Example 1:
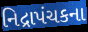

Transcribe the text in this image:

નિદ્રાપંચકના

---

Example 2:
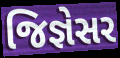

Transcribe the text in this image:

જિજ્ઞેસર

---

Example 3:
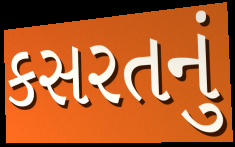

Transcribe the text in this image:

કસરતનું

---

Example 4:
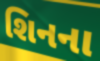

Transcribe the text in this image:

શિનના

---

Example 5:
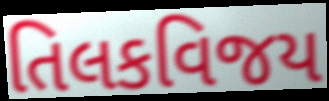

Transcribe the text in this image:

તિલકવિજય